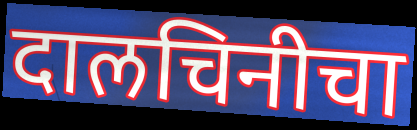
दालचिनीचा